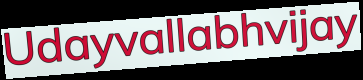
Udayvallabhvijay